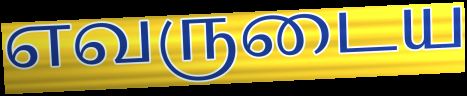
எவருடைய